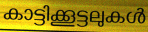
കാട്ടിക്കൂട്ടലുകൾ